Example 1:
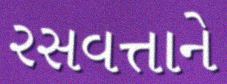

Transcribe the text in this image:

રસવત્તાને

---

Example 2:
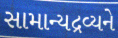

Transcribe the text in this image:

સામાન્યદ્રવ્યને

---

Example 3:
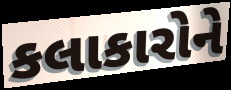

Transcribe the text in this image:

કલાકારોને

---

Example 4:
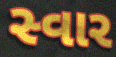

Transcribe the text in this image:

સ્વાર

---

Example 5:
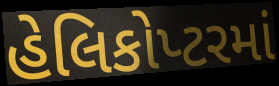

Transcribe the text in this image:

હેલિકોપ્ટરમાં